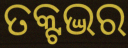
ତକ୍ଟଦ୍ଭର